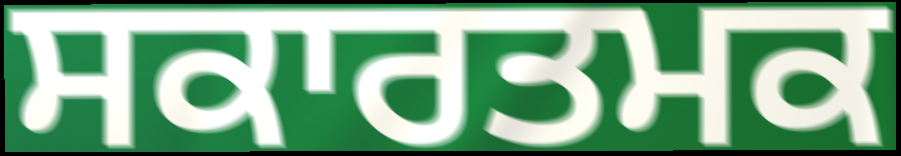
ਸਕਾਰਤਮਕ